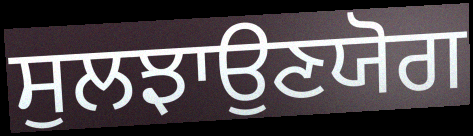
ਸੁਲਝਾਉਣਯੋਗ